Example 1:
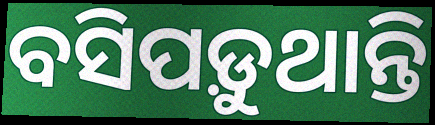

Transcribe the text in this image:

ବସିପଡ଼ୁଥାନ୍ତି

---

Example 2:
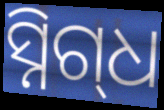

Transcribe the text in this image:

ସ୍ନିଗ୍‌ଧ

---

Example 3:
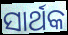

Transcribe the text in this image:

ସାର୍ଥକ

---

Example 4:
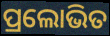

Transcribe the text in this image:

ପ୍ରଲୋଭିତ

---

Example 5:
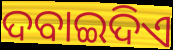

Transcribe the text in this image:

ଦବାଇଦିଏ